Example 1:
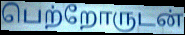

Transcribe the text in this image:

பெற்றோருடன்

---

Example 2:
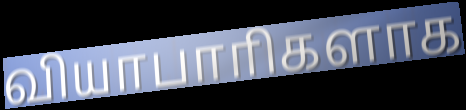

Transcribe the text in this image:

வியாபாரிகளாக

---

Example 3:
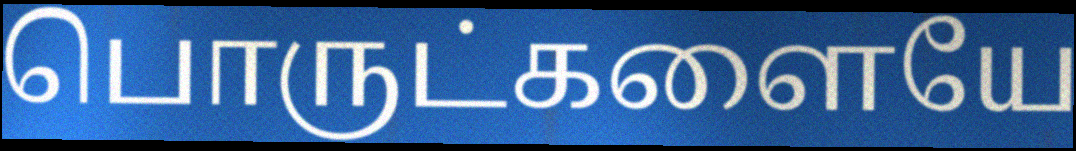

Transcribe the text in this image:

பொருட்களையே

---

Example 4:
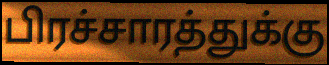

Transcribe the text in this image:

பிரச்சாரத்துக்கு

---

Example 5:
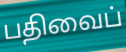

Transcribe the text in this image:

பதிவைப்